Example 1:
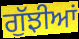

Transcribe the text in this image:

ਗੁੱਝੀਆਂ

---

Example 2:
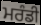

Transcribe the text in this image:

ਮਰੰਡੀ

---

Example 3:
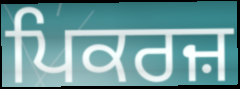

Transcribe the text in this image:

ਪਿਕਰਜ਼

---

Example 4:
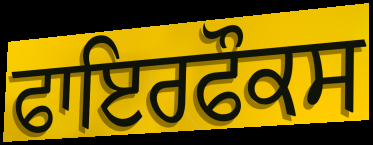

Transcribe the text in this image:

ਫਾਇਰਫੌਕਸ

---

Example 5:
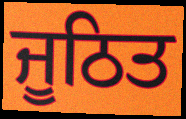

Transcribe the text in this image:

ਜੂਠਿਤ